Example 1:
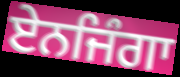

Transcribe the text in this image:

ਏਨਜਿੰਗਾ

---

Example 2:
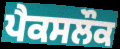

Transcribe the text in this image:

ਪੈਕਸਲੌਕ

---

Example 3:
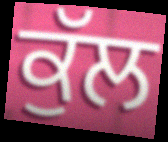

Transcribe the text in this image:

ਕੁੱਲ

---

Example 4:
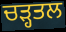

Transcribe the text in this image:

ਚੜ੍ਹਤਲ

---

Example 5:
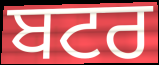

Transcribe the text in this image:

ਬਟਰ